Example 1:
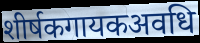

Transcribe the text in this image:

शीर्षकगायकअवधि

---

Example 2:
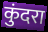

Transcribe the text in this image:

कुंदरा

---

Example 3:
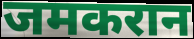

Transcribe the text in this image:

जमकरान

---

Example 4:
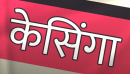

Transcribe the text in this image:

केसिंगा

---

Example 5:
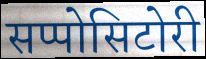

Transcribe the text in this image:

सप्पोसिटोरी